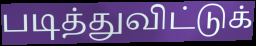
படித்துவிட்டுக்